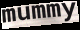
mummy